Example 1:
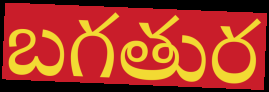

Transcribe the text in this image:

బగతుర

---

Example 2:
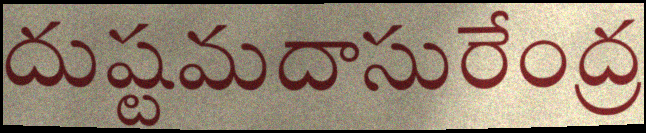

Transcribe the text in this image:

దుష్టమదాసురేంద్ర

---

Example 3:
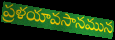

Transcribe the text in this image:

ప్రళయావసానమున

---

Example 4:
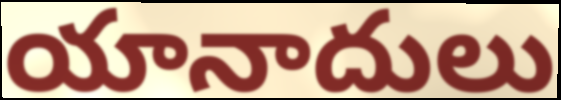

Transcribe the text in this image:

యానాదులు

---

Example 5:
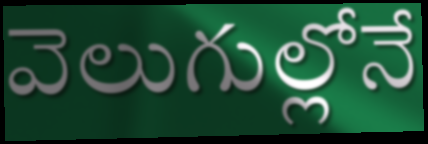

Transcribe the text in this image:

వెలుగుల్లోనే